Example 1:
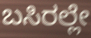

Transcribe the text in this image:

ಬಸಿರಲ್ಲೇ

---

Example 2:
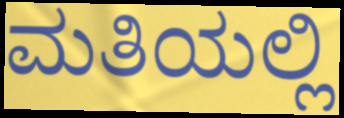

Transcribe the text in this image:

ಮತಿಯಲ್ಲಿ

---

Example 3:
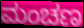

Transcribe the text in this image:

ಮಂಚಣ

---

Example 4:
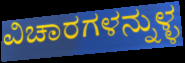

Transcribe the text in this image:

ವಿಚಾರಗಳನ್ನುಳ್ಳ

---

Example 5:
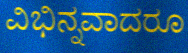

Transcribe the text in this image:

ವಿಭಿನ್ನವಾದರೂ